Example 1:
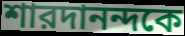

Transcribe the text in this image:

শারদানন্দকে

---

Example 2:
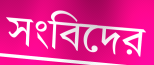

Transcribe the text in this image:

সংবিদের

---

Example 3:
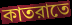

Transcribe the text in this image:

কাতরাতে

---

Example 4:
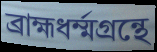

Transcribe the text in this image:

ব্রাহ্মধর্ম্মগ্রন্থে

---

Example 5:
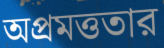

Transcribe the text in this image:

অপ্রমত্ততার